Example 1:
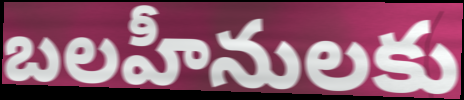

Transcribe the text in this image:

బలహీనులకు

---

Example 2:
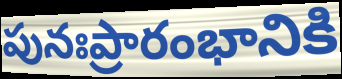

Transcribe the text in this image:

పునఃప్రారంభానికి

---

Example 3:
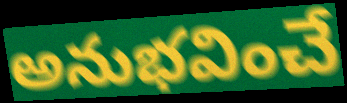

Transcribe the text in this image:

అనుభవించే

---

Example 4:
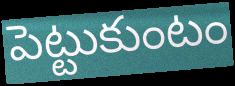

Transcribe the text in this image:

పెట్టుకుంటం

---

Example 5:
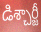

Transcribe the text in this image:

డిశ్చార్జీ